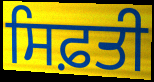
ਸਿਫ਼ਤੀ